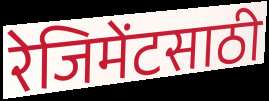
रेजिमेंटसाठी